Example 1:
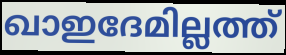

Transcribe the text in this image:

ഖാഇദേമില്ലത്ത്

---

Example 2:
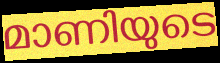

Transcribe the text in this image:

മാണിയുടെ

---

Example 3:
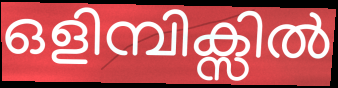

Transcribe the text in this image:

ഒളിമ്പിക്സിൽ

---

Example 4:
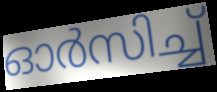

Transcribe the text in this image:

ഓർസിച്ച്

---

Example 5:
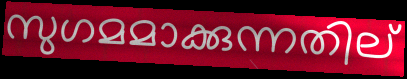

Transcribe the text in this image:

സുഗമമാക്കുന്നതില്